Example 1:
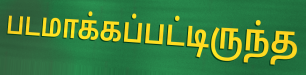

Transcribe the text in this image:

படமாக்கப்பட்டிருந்த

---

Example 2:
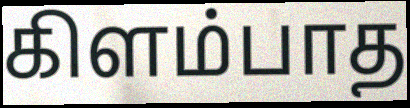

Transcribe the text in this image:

கிளம்பாத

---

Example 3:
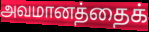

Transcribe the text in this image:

அவமானத்தைக்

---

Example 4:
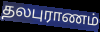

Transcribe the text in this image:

தலபுராணம்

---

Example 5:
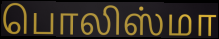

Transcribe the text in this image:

பொலிஸ்மா